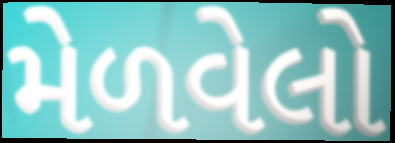
મેળવેલો